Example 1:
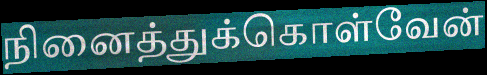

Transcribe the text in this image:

நினைத்துக்கொள்வேன்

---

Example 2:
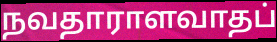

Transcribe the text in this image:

நவதாராளவாதப்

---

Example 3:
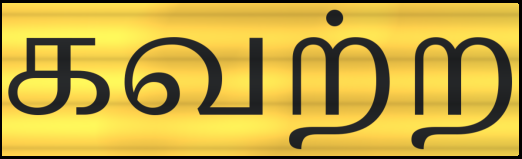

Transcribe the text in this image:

கவற்ற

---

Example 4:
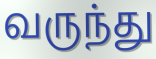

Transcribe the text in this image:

வருந்து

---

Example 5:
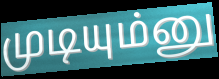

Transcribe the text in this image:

முடியும்னு